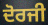
ਦੋਰਜੀ